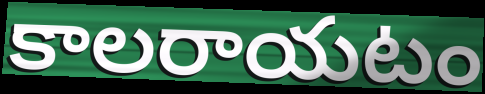
కాలరాయటం